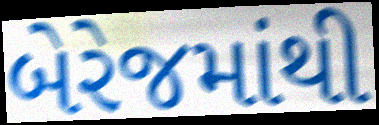
બેરેજમાંથી